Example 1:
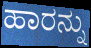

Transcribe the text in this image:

ಹಾರನ್ನು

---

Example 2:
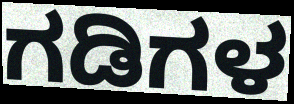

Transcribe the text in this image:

ಗಡಿಗಳ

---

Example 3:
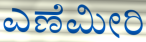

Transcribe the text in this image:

ಎಣೆಮೀರಿ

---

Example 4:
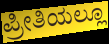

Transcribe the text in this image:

ಪ್ರೀತಿಯಲ್ಲೂ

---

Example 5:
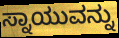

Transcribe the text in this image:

ಸ್ನಾಯುವನ್ನು